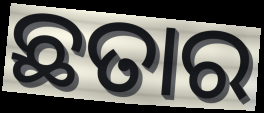
ଛତାର